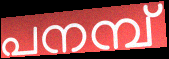
പനമ്പ്